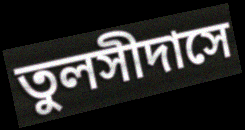
তুলসীদাসে